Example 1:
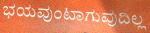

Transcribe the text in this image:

ಭಯವುಂಟಾಗುವುದಿಲ್ಲ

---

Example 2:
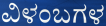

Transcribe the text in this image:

ವಿಳಂಬಗಳ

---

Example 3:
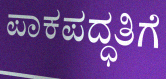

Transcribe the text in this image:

ಪಾಕಪದ್ಧತಿಗೆ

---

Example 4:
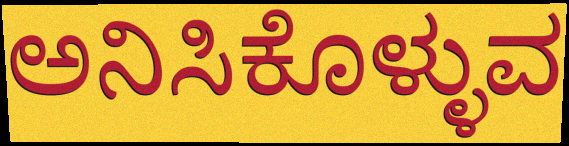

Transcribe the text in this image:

ಅನಿಸಿಕೊಳ್ಳುವ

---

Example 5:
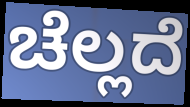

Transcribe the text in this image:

ಚೆಲ್ಲದೆ